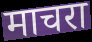
माचरा